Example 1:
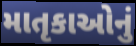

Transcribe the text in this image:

માતૃકાઓનું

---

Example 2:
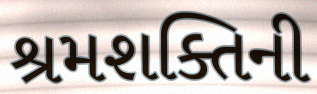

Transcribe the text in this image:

શ્રમશક્તિની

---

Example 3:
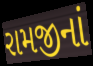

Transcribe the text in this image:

રામજીનાં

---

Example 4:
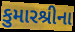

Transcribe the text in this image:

કુમારશ્રીના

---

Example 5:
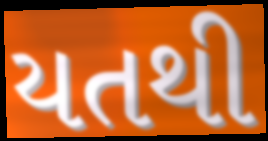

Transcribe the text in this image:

યતથી